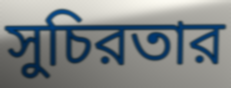
সুচিরতার